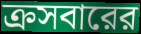
ক্রসবারের